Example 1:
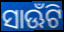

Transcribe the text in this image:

ସାଊଁଟି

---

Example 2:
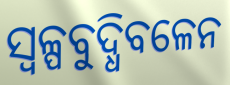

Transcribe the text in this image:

ସ୍ଵଳ୍ପବୁଦ୍ଧିବଳେନ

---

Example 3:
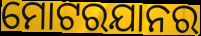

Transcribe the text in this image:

ମୋଟରଯାନର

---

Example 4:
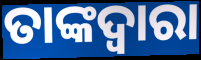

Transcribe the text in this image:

ତାଙ୍କଦ୍ଵାରା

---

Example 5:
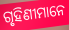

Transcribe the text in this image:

ଗୃହିଣୀମାନେ